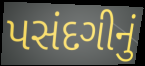
પસંદગીનું